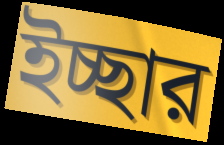
ইচ্ছার